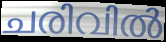
ചരിവിൽ